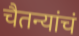
चैतन्यांचं